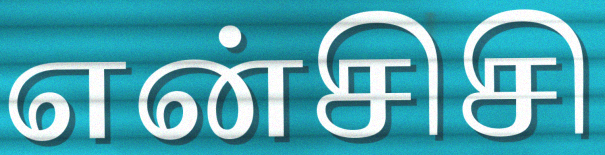
என்சிசி